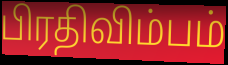
பிரதிவிம்பம்